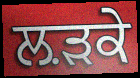
ਲ਼ਡ਼ਕੇ